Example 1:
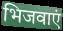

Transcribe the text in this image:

भिजवाएं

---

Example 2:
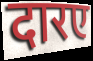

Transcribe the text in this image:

दारए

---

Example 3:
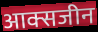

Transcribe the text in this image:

आक्सजीन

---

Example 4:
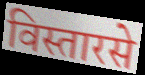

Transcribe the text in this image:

विस्तारसे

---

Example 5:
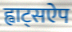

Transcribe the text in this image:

ह्वाट्सऐप